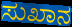
ಸುಖಾನ